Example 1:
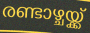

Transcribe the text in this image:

രണ്ടാഴ്ചയ്ക്ക്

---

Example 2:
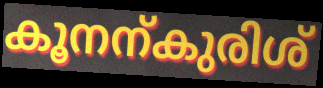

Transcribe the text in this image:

കൂനന്കുരിശ്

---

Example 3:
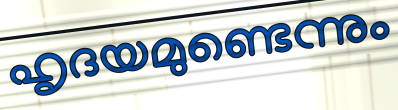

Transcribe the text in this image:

ഹൃദയമുണ്ടെന്നും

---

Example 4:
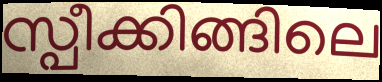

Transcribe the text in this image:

സ്പീക്കിങ്ങിലെ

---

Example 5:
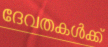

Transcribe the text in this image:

ദേവതകൾക്ക്